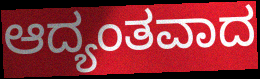
ಆದ್ಯಂತವಾದ